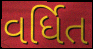
વર્ધિત